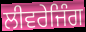
ਲੀਵਰੇਜਿੰਗ